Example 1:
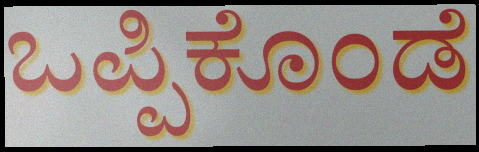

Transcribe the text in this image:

ಒಪ್ಪಿಕೊಂಡೆ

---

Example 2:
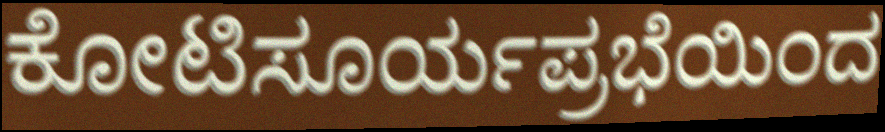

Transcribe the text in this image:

ಕೋಟಿಸೂರ್ಯಪ್ರಭೆಯಿಂದ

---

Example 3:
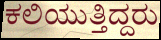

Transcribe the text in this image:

ಕಲಿಯುತ್ತಿದ್ದರು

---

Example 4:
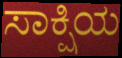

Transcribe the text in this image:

ಸಾಕ್ಷಿಯ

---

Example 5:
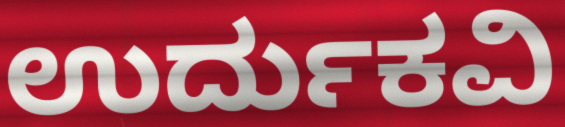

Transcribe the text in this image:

ಉರ್ದುಕವಿ